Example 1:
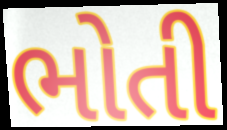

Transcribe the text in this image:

ભોતી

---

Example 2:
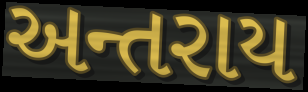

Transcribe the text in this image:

અન્તરાય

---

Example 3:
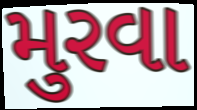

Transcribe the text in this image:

મુરવા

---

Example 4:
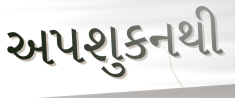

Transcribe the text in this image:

અપશુકનથી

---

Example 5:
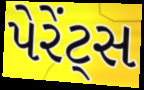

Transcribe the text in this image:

પેરેંટ્સ